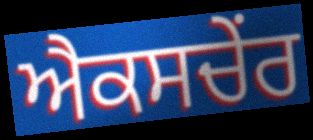
ਐਕਸਚੇਂਰ